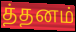
த்தனம்